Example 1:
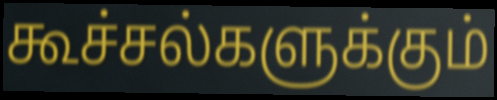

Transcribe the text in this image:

கூச்சல்களுக்கும்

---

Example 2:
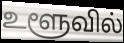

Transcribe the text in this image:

உளூவில்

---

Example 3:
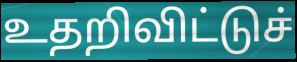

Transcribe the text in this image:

உதறிவிட்டுச்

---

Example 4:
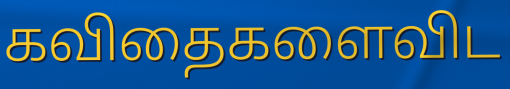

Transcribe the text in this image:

கவிதைகளைவிட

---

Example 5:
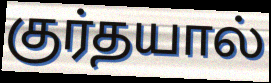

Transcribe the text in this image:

குர்தயால்